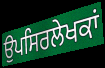
ਉਪਸਿਰਲੇਖਕਾਂ